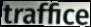
traffice